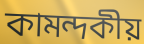
কামন্দকীয়